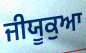
ਜੀਯੂਕੁਆ